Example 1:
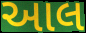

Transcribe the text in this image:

આલ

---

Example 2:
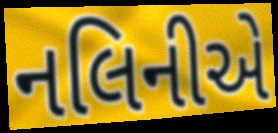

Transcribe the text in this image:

નલિનીએ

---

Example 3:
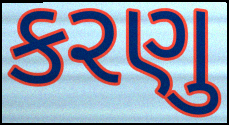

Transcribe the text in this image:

કરણુ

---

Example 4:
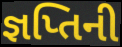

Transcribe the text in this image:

જ્ઞપ્તિની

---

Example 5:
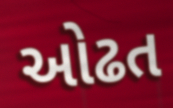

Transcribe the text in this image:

ઓઢત